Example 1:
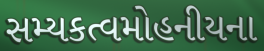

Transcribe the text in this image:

સમ્યકત્વમોહનીયના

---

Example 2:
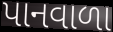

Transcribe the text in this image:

પાનવાળા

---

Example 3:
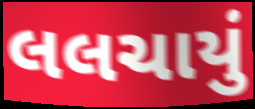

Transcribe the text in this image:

લલચાયું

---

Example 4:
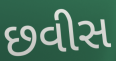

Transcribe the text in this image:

છવીસ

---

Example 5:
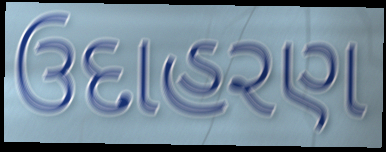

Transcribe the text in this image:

ઉદાહરણ